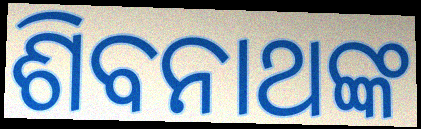
ଶିବନାଥଙ୍କ